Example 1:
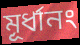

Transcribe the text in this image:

মূর্ধানং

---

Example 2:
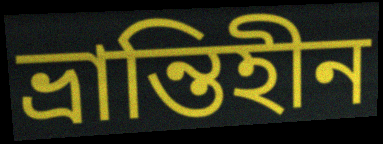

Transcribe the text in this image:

ভ্রান্তিহীন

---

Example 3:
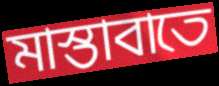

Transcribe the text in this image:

মাস্তাবাতে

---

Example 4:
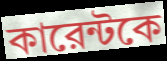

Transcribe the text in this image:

কারেন্টকে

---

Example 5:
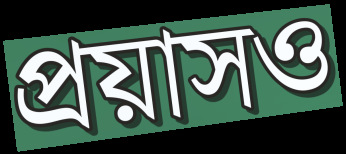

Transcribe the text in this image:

প্রয়াসও